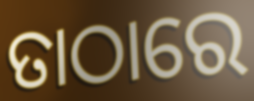
ତାଠାରେ